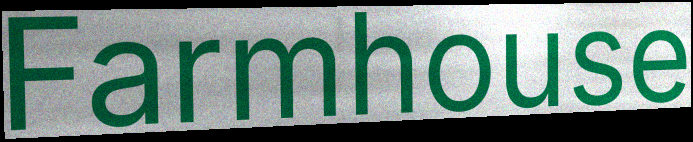
Farmhouse